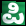
ಪಿ